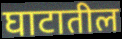
घाटातील